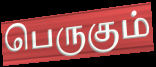
பெருகும்